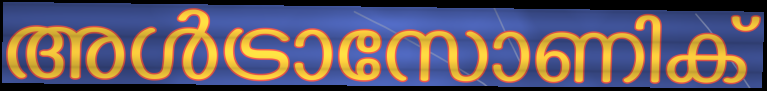
അൾട്രാസോണിക്